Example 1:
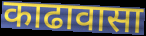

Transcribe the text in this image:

काढावासा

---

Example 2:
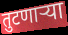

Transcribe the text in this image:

तुटणार्‍या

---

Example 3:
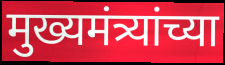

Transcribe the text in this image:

मुख्यमंत्र्यांच्या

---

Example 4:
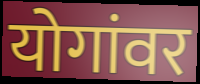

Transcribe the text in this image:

योगांवर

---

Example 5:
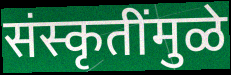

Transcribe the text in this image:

संस्कृतींमुळे